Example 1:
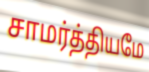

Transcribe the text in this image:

சாமர்த்தியமே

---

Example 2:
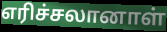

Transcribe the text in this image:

எரிச்சலானாள்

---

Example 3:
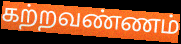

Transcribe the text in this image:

கற்றவண்ணம்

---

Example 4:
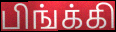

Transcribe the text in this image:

பிங்க்கி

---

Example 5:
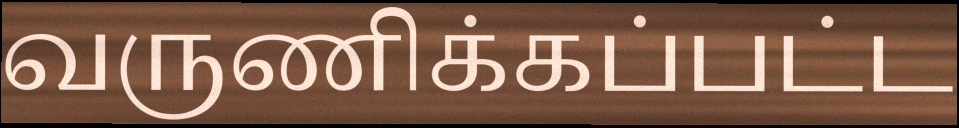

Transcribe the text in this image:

வருணிக்கப்பட்ட